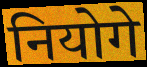
नियोगे